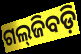
ଗଲ୍‌ଜିବଡ଼ି